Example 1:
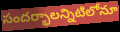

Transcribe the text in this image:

సందర్భాలన్నిటిలోనూ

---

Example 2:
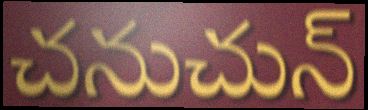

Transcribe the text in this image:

చనుచున్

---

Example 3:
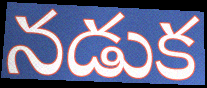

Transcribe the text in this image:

నడుక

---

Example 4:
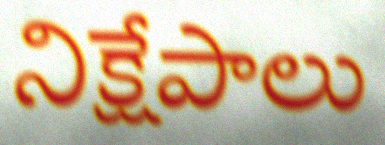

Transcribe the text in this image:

నిక్షేపాలు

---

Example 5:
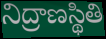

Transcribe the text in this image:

నిద్రాణస్థితి